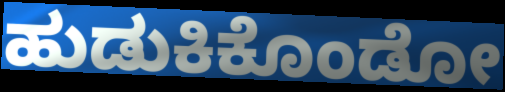
ಹುಡುಕಿಕೊಂಡೋ